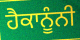
ਹੈਕਾਨੂੰਨੀ